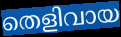
തെളിവായ